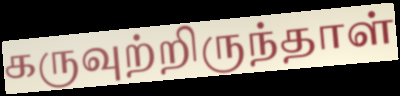
கருவுற்றிருந்தாள்